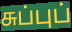
சுப்புப்